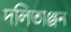
দলিতাঞ্জন